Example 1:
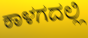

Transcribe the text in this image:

ಕಾಳಗದಲ್ಲಿ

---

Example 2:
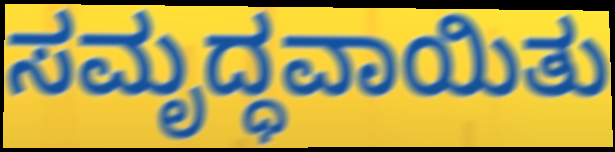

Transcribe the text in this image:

ಸಮೃದ್ಧವಾಯಿತು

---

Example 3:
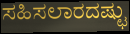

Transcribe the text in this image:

ಸಹಿಸಲಾರದಷ್ಟು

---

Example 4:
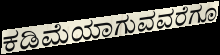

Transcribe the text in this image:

ಕಡಿಮೆಯಾಗುವವರೆಗೂ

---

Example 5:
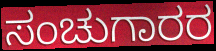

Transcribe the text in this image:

ಸಂಚುಗಾರರ